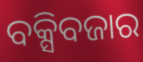
ବକ୍ସିବଜାର